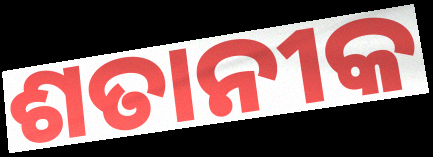
ଶତାନୀକ